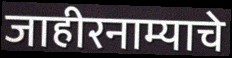
जाहीरनाम्याचे